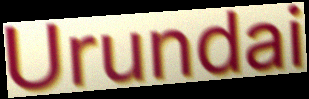
Urundai